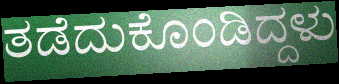
ತಡೆದುಕೊಂಡಿದ್ದಳು